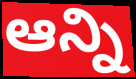
ఆన్ని